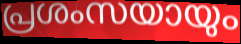
പ്രശംസയായും